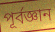
পূর্বজ্ঞান